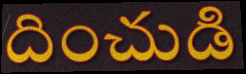
దించుడి